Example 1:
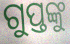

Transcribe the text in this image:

ଗୁପ୍ତଙ୍କୁ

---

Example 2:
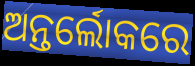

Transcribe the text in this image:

ଅନ୍ତର୍ଲୋକରେ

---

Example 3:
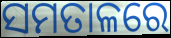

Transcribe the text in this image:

ସମତାଳରେ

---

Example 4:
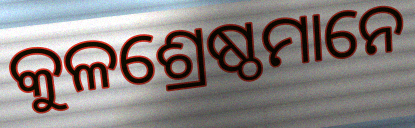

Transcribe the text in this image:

କୁଳଶ୍ରେଷ୍ଠମାନେ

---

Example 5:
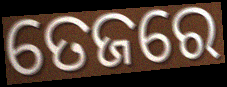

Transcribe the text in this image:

ତେଜରେ